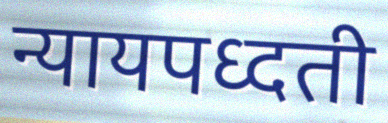
न्यायपध्दती